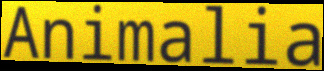
Animalia